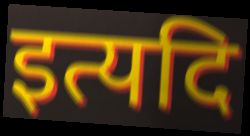
इत्यदि